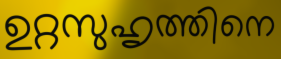
ഉറ്റസുഹൃത്തിനെ